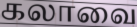
கலாவை